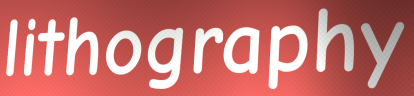
lithography